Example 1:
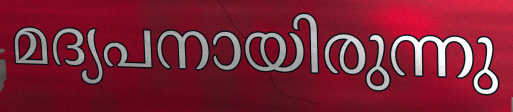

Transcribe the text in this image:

മദ്യപനായിരുന്നു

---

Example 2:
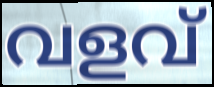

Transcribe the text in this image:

വളവ്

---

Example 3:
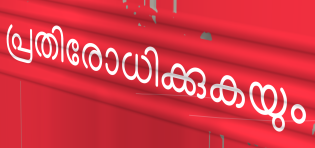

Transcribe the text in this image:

പ്രതിരോധിക്കുകയും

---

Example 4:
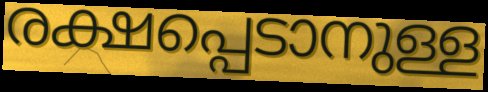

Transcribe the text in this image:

രക്ഷപ്പെടാനുള്ള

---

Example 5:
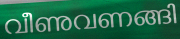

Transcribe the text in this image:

വീണുവണങ്ങി